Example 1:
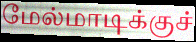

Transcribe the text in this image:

மேல்மாடிக்குச்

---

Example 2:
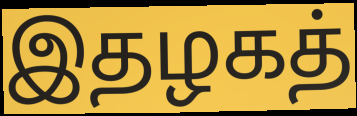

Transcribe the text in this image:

இதழகத்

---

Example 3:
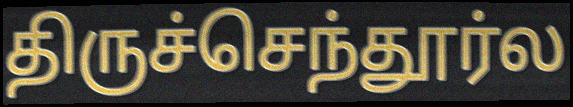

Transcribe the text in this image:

திருச்செந்தூர்ல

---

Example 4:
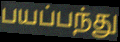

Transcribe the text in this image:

பயப்பந்து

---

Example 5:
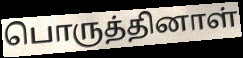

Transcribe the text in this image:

பொருத்தினாள்